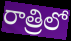
రాత్రిలో